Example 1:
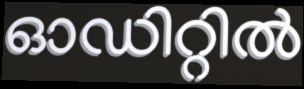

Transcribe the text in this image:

ഓഡിറ്റിൽ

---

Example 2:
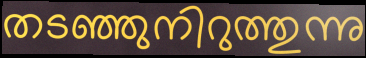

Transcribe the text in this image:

തടഞ്ഞുനിറുത്തുന്നു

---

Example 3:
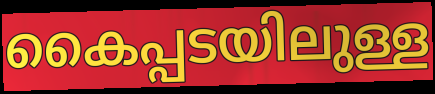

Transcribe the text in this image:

കൈപ്പടയിലുള്ള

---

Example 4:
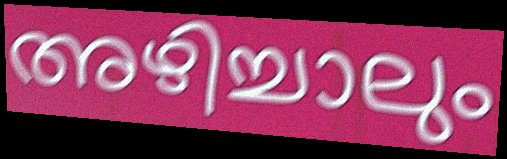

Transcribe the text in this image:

അഴിച്ചാലും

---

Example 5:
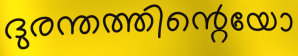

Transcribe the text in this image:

ദുരന്തത്തിന്റെയോ